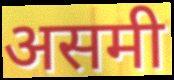
असमी